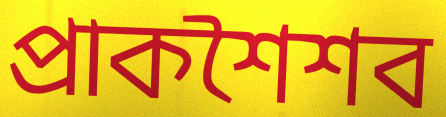
প্রাকশৈশব